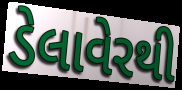
ડેલાવેરથી